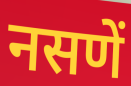
नसणें